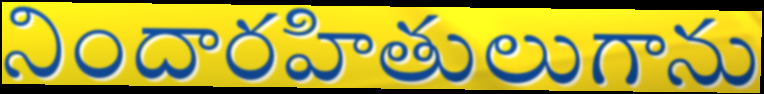
నిందారహితులుగాను